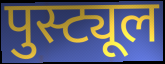
पुस्ट्यूल